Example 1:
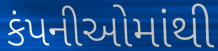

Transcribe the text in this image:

કંપનીઓમાંથી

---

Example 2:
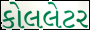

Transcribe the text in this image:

કોલલેટર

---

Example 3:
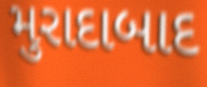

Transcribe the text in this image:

મુરાદાબાદ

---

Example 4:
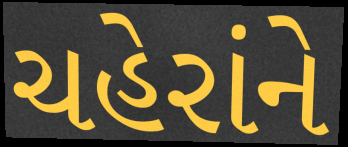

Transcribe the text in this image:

ચહેરાંને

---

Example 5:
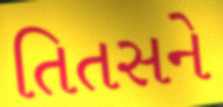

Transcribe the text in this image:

તિતસને